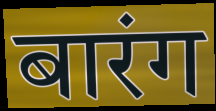
बारंग